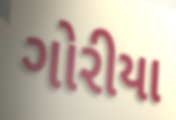
ગોરીયા